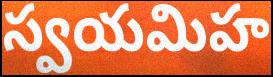
స్వయమిహ